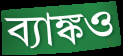
ব্যাঙ্কও